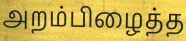
அறம்பிழைத்த